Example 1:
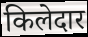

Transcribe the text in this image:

किलेदार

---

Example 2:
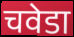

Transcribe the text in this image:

चवेडा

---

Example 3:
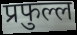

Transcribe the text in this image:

प्रफुल्ल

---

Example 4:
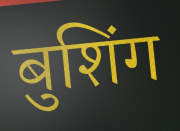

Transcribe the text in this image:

बुशिंग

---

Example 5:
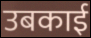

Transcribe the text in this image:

उबकाई